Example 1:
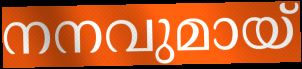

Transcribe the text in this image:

നനവുമായ്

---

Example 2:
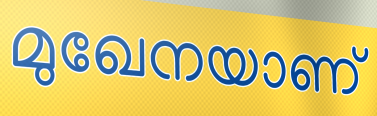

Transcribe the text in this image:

മുഖേനയാണ്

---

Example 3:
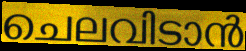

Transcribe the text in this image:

ചെലവിടാൻ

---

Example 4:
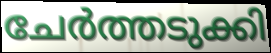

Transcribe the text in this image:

ചേർത്തടുക്കി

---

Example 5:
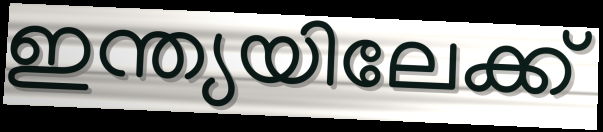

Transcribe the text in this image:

ഇന്ത്യയിലേക്ക്